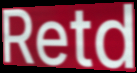
Retd